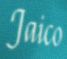
Jaico